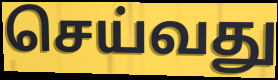
செய்வது